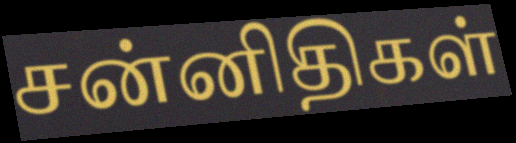
சன்னிதிகள்